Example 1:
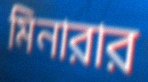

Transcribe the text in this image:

মিনারার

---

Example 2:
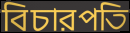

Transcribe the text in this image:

বিচারপতি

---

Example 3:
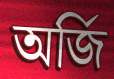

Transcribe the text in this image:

অর্জি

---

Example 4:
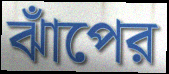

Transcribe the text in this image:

ঝাঁপের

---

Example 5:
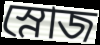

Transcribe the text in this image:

স্নোজ